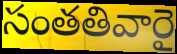
సంతతివారై